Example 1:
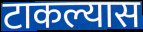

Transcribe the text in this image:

टाकल्यास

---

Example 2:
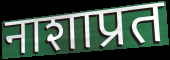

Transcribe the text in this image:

नाशाप्रत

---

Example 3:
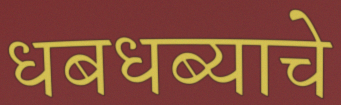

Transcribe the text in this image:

धबधब्याचे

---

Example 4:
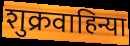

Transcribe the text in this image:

शुक्रवाहिन्या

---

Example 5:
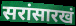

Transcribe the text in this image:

सरांसारखं